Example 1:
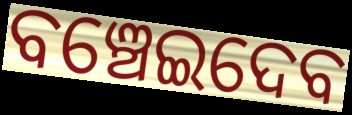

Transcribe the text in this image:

ବଞ୍ଚେଇଦେବ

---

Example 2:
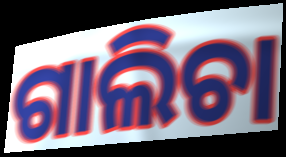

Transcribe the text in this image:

ଗାଲିଚା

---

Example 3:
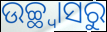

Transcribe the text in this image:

ଉଚ୍ଛ୍ୱାସରୁ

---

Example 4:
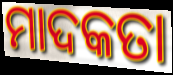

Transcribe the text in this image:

ମାଦକତା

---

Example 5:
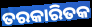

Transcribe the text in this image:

ତରକାରିତକ